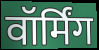
वॉर्मिंग